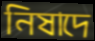
নিষাদে